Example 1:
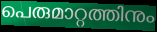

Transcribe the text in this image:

പെരുമാറ്റത്തിനും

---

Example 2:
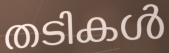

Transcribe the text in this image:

തടികൾ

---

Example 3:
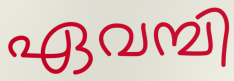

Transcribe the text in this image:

ഏവമ്പി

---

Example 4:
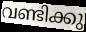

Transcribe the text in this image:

വണ്ടിക്കു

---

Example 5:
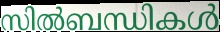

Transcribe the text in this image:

സിൽബന്ധികൾ